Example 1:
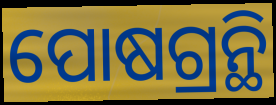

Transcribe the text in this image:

ପୋଷଗ୍ରନ୍ଥି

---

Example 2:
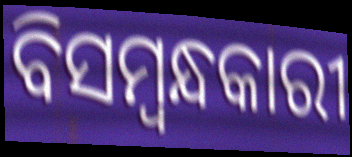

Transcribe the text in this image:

ବିସମ୍ବନ୍ଧକାରୀ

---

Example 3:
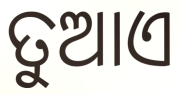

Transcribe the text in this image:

ତୁଆଏ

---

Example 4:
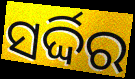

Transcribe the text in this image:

ସର୍ଦ୍ଦିର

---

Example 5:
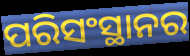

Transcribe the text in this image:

ପରିସଂସ୍ଥାନର